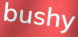
bushy